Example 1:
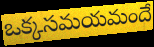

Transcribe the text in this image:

ఒక్కసమయమందే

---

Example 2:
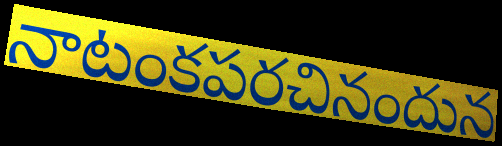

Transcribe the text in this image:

నాటంకపరచినందున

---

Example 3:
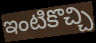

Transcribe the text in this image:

ఇంటికొచ్చి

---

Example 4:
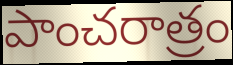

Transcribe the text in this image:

పాంచరాత్రం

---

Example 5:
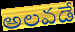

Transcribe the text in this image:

అలవడే